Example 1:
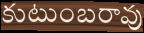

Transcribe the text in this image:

కుటుంబరావు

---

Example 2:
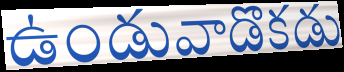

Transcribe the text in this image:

ఉండువాడొకడు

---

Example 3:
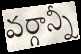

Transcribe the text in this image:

వర్గాన్నీ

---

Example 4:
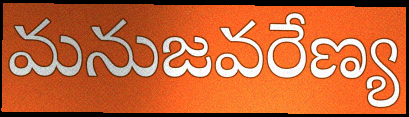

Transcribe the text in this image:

మనుజవరేణ్య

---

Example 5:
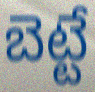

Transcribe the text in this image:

బెట్టే